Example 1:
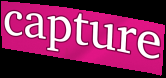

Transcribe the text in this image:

capture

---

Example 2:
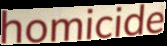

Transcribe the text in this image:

homicide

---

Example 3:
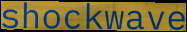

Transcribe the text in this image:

shockwave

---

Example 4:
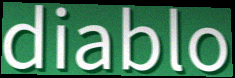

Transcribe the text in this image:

diablo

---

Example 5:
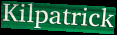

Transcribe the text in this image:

Kilpatrick